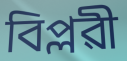
বিপ্লৱী